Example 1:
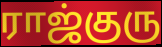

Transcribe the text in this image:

ராஜ்குரு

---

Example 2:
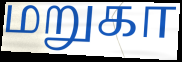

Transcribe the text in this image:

மறுகா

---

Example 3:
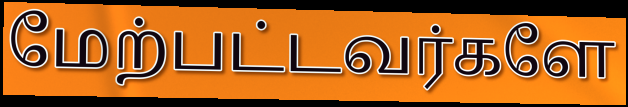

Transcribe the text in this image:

மேற்பட்டவர்களே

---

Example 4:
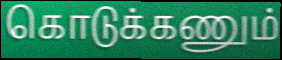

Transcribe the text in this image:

கொடுக்கணும்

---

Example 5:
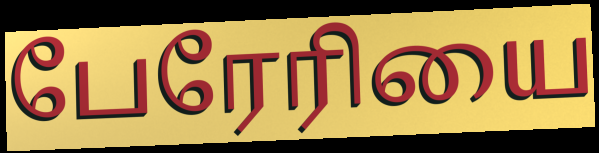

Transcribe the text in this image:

பேரேரியை